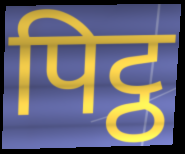
पिट्ठ